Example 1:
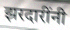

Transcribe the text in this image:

झरदारींनी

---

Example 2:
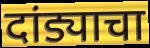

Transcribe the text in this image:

दांड्याचा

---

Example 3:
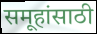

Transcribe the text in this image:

समूहांसाठी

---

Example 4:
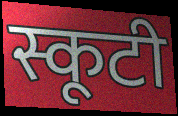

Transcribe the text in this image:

स्कूटी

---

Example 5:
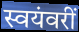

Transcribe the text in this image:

स्वयंवरीं